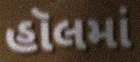
હૉલમાં